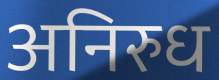
अनिरुध